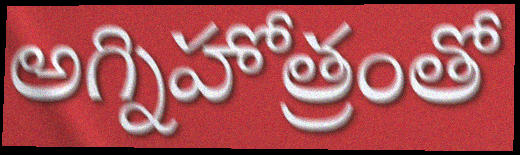
అగ్నిహోత్రంతో